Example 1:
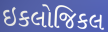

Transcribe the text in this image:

ઇકલોજિકલ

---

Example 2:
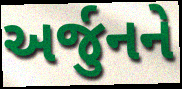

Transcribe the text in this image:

અર્જુનને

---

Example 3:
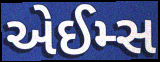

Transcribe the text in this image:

એઈમ્સ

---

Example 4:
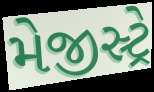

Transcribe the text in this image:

મેજીસ્ર્ટ્રે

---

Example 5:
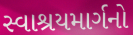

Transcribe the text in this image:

સ્વાશ્રયમાર્ગનો